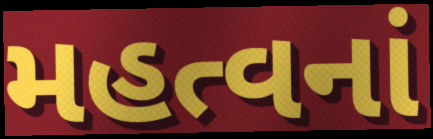
મહત્વનાં